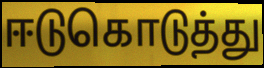
ஈடுகொடுத்து